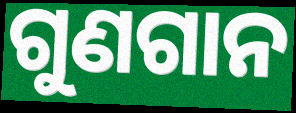
ଗୁଣଗାନ